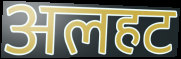
अलहट